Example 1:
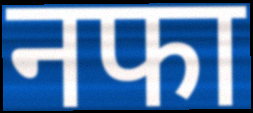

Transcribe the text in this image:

नफा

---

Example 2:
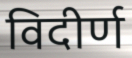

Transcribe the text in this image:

विदीर्ण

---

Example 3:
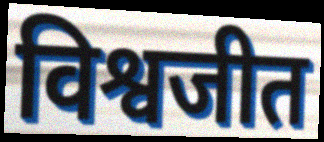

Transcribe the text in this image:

विश्वजीत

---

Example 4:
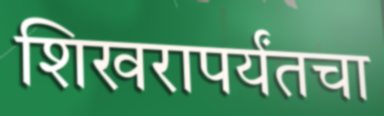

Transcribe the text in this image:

शिखरापर्यंतचा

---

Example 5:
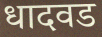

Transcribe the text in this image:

धादवड